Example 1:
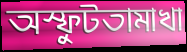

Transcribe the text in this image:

অস্ফুটতামাখা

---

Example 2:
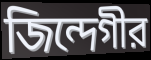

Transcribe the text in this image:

জিন্দেগীর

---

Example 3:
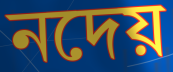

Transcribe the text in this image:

নদেয়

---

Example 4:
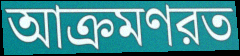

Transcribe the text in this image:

আক্রমণরত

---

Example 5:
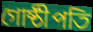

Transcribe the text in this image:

গোষ্ঠীপতি